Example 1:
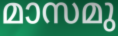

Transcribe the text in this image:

മാസമു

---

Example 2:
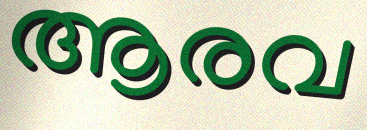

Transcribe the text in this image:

ആരവ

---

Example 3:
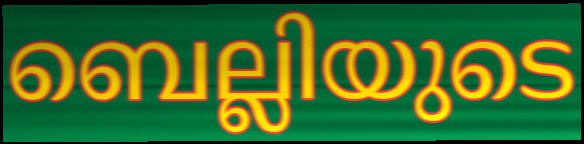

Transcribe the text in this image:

ബെല്ലിയുടെ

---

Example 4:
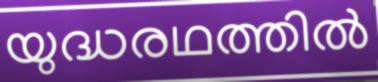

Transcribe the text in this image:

യുദ്ധരഥത്തിൽ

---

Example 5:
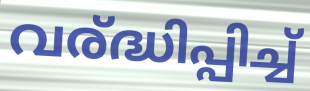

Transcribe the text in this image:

വര്ദ്ധിപ്പിച്ച്